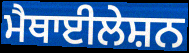
ਮੈਥਾਈਲੇਸ਼ਨ